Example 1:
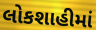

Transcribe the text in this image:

લોકશાહીમાં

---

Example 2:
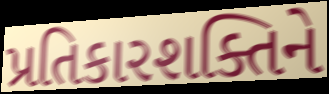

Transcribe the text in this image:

પ્રતિકારશક્તિને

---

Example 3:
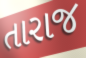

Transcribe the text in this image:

તારાજ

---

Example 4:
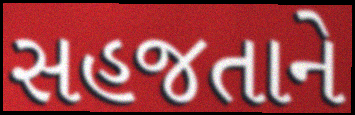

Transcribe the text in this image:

સહજતાને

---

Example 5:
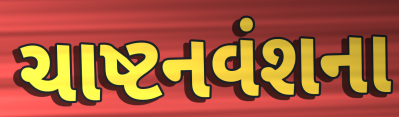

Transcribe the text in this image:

ચાષ્ટનવંશના